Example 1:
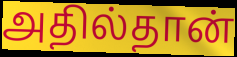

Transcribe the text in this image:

அதில்தான்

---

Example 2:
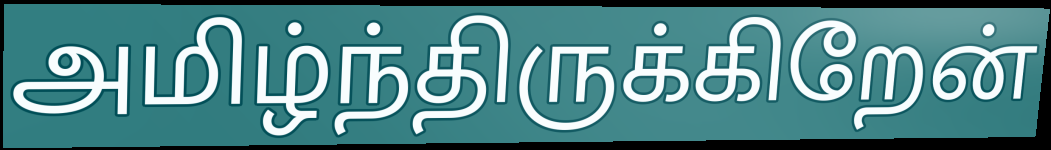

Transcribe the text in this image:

அமிழ்ந்திருக்கிறேன்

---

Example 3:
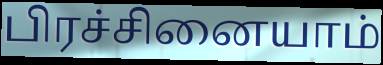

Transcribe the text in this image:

பிரச்சினையாம்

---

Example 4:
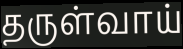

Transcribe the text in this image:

தருள்வாய்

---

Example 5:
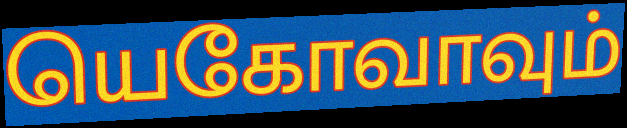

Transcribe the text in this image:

யெகோவாவும்